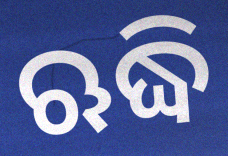
ଋଦ୍ଧି